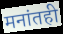
मनांतही